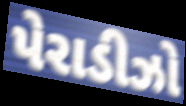
પેરાડીઝો